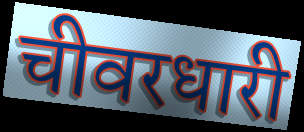
चीवरधारी